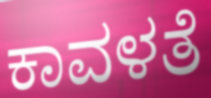
ಕಾವಳತೆ